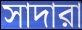
সাদারা